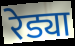
रेड्या